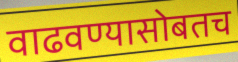
वाढवण्यासोबतच